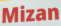
Mizan